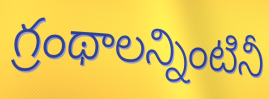
గ్రంథాలన్నింటినీ